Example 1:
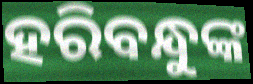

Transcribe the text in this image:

ହରିବନ୍ଧୁଙ୍କ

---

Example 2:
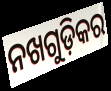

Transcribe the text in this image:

ନଖଗୁଡ଼ିକର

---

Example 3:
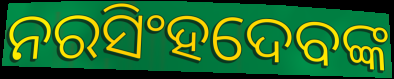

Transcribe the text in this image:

ନରସିଂହଦେବଙ୍କ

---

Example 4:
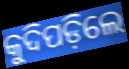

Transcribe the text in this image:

କୁଦିପଡ଼ିଲେ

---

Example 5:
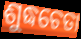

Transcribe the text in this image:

ଶୁଦ୍ଧଚେତା